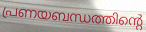
പ്രണയബന്ധത്തിന്റെ